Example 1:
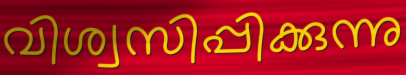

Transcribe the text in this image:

വിശ്വസിപ്പിക്കുന്നു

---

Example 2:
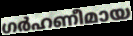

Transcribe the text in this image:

ഗർഹണീമായ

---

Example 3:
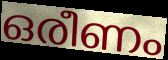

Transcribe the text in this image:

ഒരീണം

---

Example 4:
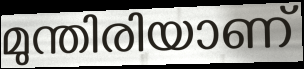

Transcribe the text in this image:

മുന്തിരിയാണ്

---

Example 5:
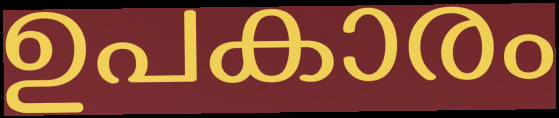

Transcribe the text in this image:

ഉപകാരം